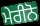
ਮੇਰੀਨੋ